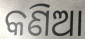
କଣିଆ